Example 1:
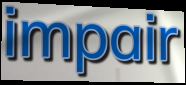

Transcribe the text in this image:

impair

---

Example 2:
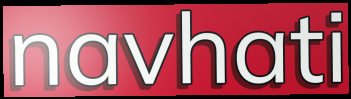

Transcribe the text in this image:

navhati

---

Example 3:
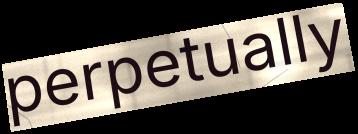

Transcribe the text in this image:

perpetually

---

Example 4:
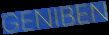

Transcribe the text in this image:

GENIBEN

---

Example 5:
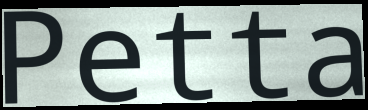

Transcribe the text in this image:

Petta